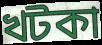
খটকা